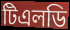
টিএলডি